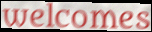
welcomes